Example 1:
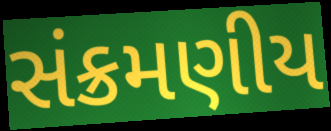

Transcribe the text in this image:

સંક્રમણીય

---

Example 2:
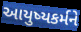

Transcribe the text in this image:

આયુષ્યકર્મને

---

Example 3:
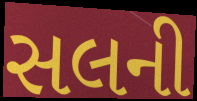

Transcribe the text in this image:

સલની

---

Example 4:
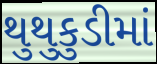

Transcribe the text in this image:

થુથુકુડીમાં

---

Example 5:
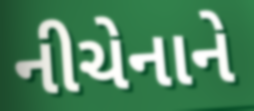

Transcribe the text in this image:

નીચેનાને